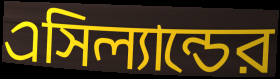
এসিল্যান্ডের